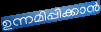
ഉന്നമിപ്പിക്കാൻ